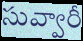
సువ్వారీ